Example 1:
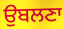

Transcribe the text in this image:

ਉਬਲਣਾ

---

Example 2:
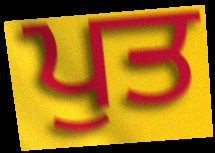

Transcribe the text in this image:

ਪੁਤ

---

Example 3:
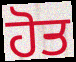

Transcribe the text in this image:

ਹੋਤ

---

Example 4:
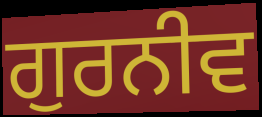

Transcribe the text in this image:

ਗੁਰਨੀਵ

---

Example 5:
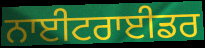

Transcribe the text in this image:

ਨਾਈਟਰਾਈਡਰ